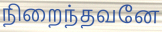
நிறைந்தவனே